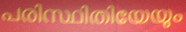
പരിസ്ഥിതിയേയും